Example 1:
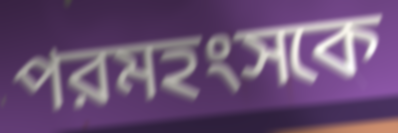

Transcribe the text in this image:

পরমহংসকে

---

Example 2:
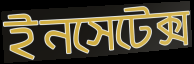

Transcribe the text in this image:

ইনসেটেক্স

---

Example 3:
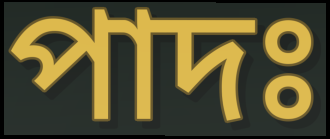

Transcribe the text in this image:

পাদঃ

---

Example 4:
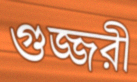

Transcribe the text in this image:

গুজ্জরী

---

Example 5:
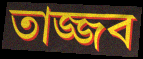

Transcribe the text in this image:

তাজ্জব